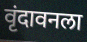
वृंदावनला